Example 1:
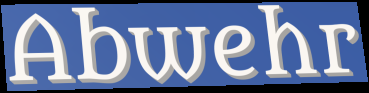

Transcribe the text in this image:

Abwehr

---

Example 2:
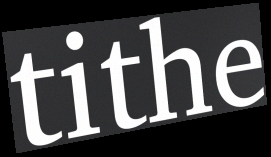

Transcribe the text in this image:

tithe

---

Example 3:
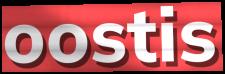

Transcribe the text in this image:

oostis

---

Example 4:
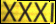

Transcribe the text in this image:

XXXI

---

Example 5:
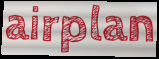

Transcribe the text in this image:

airplan